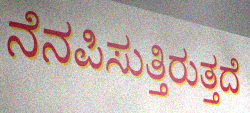
ನೆನಪಿಸುತ್ತಿರುತ್ತದೆ